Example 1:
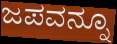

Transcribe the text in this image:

ಜಪವನ್ನೂ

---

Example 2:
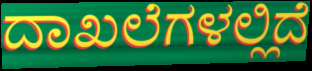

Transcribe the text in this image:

ದಾಖಲೆಗಳಲ್ಲಿದೆ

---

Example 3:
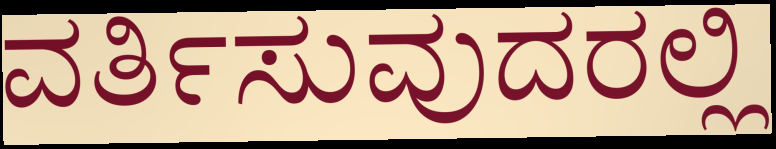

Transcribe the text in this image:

ವರ್ತಿಸುವುದರಲ್ಲಿ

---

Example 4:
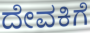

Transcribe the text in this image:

ದೇವಕಿಗೆ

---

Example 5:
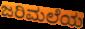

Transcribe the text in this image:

ಜರಿಮಲೆಯ